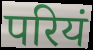
परियं